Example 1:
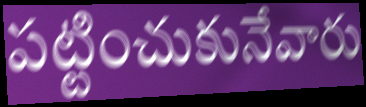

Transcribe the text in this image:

పట్టించుకునేవారు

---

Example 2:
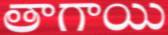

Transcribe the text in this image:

తాగాయి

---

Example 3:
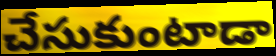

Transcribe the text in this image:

చేసుకుంటాడా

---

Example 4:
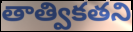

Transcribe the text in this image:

తాత్వికతని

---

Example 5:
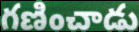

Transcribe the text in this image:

గణించాడు